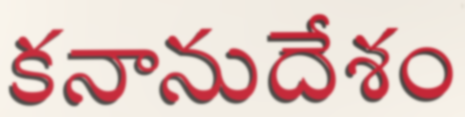
కనానుదేశం